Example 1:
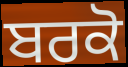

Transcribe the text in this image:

ਬਰਕੋ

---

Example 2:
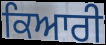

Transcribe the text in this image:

ਕਿਆਰੀ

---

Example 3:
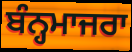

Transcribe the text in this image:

ਬੰਨ੍ਹਮਾਜਰਾ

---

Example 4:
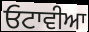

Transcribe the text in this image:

ਓਟਾਵੀਆ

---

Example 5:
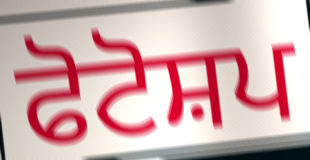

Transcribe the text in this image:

ਫੋਟੋਸ਼ਪ